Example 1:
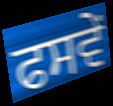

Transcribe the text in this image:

ਫਸਵੇਂ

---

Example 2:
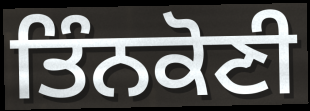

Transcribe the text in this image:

ਤਿੰਨਕੋਣੀ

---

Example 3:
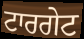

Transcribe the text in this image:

ਟਾਰਗੇਟ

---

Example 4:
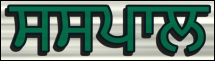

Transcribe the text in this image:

ਸਸਪਾਲ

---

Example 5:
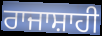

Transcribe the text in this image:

ਰਾਜਾਸ਼ਾਹੀ